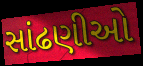
સાંઢણીઓ